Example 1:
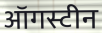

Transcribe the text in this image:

ऑगस्टीन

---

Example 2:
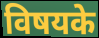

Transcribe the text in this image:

विषयके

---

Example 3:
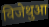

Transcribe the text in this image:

विजेथुआ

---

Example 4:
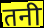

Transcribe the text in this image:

तनी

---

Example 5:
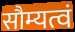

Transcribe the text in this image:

सौम्यत्वं